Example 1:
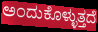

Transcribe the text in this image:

ಅಂದುಕೊಳ್ಳುತ್ತದೆ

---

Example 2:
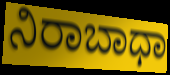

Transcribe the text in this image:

ನಿರಾಬಾಧಾ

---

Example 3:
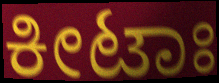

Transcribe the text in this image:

ಕೀಟಾಃ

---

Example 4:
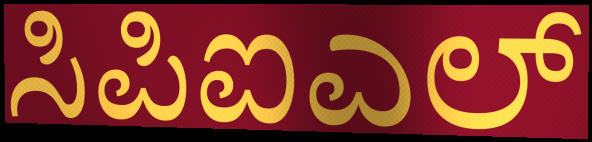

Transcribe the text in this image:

ಸಿಪಿಐಎಲ್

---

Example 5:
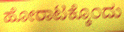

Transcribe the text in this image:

ಹೋರಾಟಕ್ಕೊಂದು